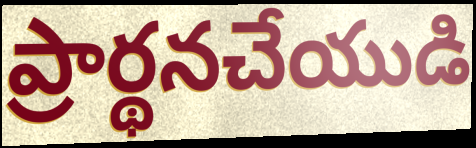
ప్రార్థనచేయుడి